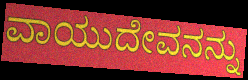
ವಾಯುದೇವನನ್ನು